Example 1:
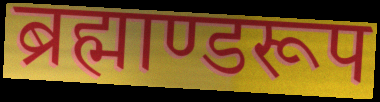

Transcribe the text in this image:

ब्रह्माण्डरूप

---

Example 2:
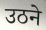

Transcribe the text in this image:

उठने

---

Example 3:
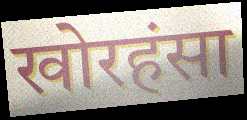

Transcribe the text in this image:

खोरहंसा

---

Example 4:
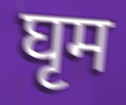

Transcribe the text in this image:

घृम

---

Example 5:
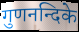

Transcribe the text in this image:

गुणनन्दिके